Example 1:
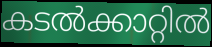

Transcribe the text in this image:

കടൽക്കാറ്റിൽ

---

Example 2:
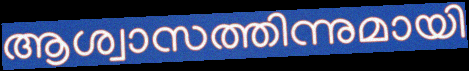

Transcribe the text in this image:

ആശ്വാസത്തിന്നുമായി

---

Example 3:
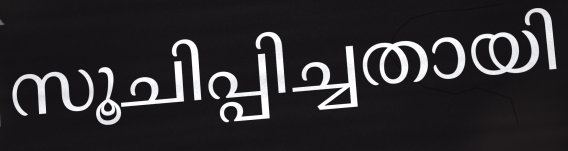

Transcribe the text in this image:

സൂചിപ്പിച്ചതായി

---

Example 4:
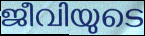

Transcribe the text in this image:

ജീവിയുടെ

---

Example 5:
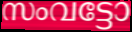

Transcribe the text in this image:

സംവട്ടോ